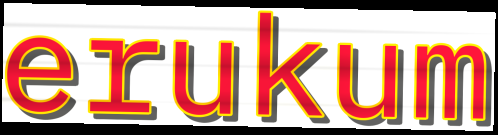
erukum